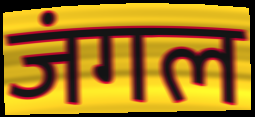
जंगल